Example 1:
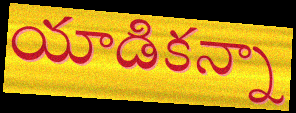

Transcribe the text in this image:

యాడికన్నా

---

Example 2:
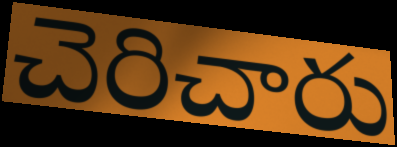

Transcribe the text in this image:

చెరిచారు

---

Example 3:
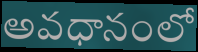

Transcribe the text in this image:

అవధానంలో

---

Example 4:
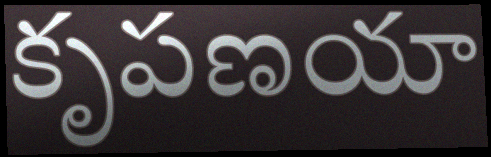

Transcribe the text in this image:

కృపణయా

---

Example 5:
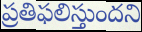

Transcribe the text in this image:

ప్రతిఫలిస్తుందని